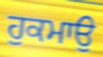
ਹੁਕਮਾਉ